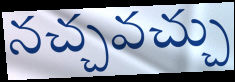
నచ్చవచ్చు